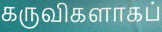
கருவிகளாகப்